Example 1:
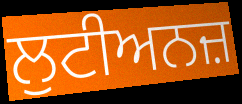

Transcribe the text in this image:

ਲੁਟੀਅਨਜ਼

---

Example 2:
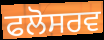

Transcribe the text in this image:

ਫਲੋਸਰਵ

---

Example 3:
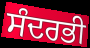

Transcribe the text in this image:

ਸੰਦਰਭੀ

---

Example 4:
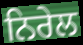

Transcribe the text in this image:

ਨਿਰੇਲ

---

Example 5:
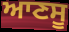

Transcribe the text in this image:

ਆਣਸੂ